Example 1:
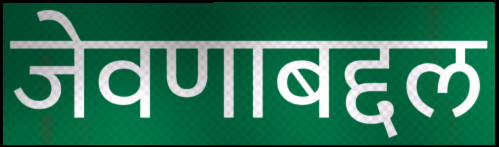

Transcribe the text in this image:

जेवणाबद्दल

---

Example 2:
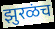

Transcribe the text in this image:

झुरळंच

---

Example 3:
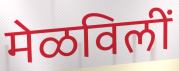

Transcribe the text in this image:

मेळविलीं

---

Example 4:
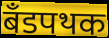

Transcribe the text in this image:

बँडपथक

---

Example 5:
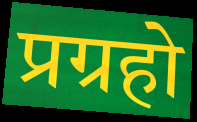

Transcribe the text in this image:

प्रग्रहो